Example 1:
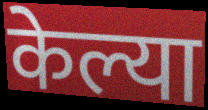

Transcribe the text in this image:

केल्या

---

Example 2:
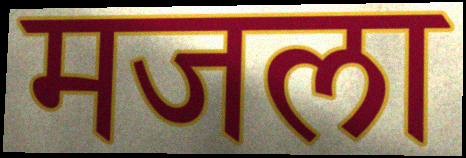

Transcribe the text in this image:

मजला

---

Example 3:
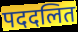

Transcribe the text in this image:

पददलित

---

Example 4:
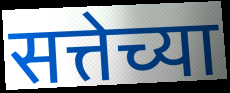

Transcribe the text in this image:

सत्तेच्या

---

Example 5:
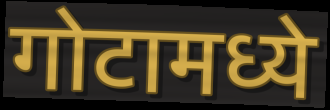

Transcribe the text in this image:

गोटामध्ये